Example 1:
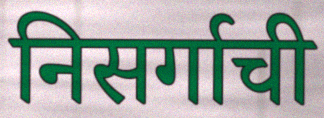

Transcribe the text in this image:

निसर्गाची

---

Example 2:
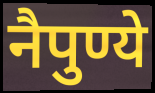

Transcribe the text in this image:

नैपुण्ये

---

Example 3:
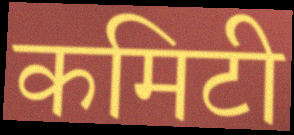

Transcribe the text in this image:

कमिटी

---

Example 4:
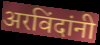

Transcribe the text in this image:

अरविंदांनी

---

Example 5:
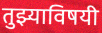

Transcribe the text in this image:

तुझ्याविषयी